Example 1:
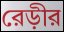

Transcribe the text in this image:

রেড়ীর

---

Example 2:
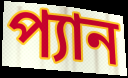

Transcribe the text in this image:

প্যান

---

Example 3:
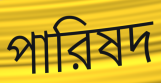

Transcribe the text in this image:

পারিষদ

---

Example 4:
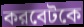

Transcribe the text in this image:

করবেটকে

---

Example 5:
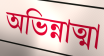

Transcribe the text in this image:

অভিন্নাত্মা